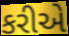
કરીએ